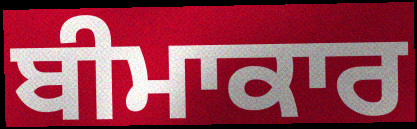
ਬੀਮਾਕਾਰ